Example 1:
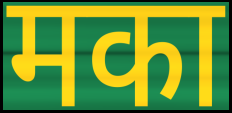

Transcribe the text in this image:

मका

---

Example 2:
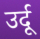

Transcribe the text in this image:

उर्दू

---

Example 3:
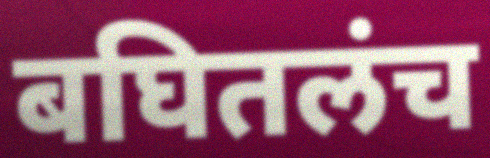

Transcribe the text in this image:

बघितलंच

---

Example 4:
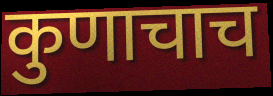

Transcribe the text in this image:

कुणाचाच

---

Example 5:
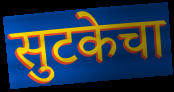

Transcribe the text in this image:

सुटकेचा